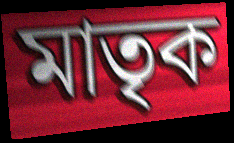
মাতৃক